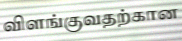
விளங்குவதற்கான